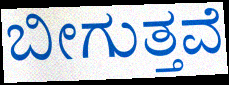
ಬೀಗುತ್ತವೆ